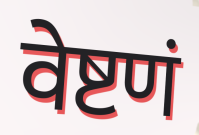
वेष्टणं